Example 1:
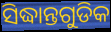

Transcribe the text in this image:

ସିଦ୍ଧାନ୍ତଗୁଡିକ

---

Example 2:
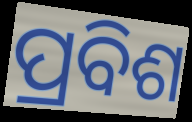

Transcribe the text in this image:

ପ୍ରବିଶ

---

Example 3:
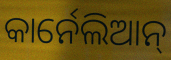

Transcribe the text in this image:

କାର୍ନେଲିଆନ୍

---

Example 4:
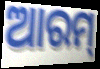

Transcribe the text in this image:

ଆରମ୍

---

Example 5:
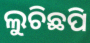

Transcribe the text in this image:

ଲୁଚିଛପି